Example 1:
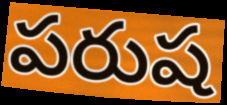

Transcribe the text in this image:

పరుష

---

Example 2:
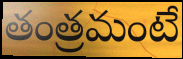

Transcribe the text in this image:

తంత్రమంటే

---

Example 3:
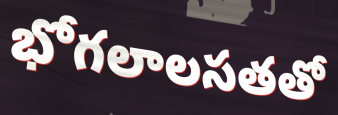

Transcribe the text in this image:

భోగలాలసతతో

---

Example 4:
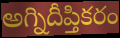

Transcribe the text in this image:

అగ్నిదీప్తికరం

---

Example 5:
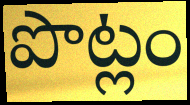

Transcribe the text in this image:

పొట్లం